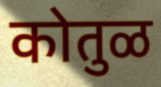
कोतुळ